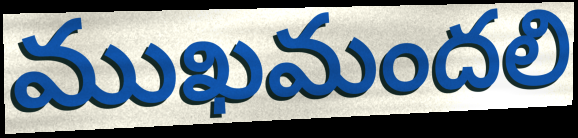
ముఖమందలి